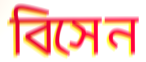
বিসেন